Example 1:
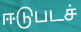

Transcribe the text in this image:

ஈடுபடச்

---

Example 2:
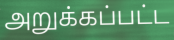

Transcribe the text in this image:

அறுக்கப்பட்ட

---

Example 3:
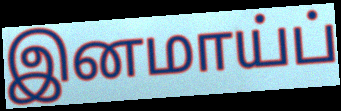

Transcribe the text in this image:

இனமாய்ப்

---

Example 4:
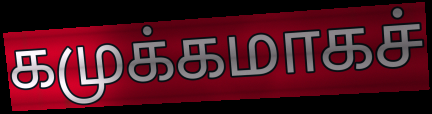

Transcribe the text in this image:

கமுக்கமாகச்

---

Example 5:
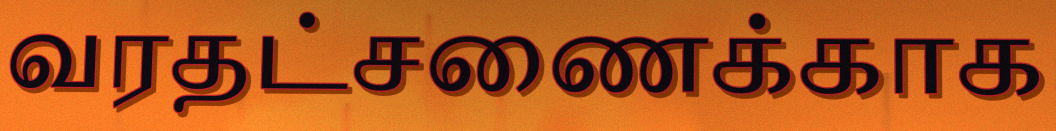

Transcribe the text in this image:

வரதட்சணைக்காக